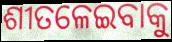
ଶୀତଳେଇବାକୁ